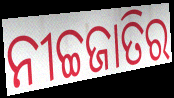
ନୀଚ୍ଚଜାତିର